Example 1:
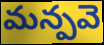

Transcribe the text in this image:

మన్పవె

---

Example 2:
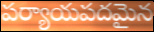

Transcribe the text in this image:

పర్యాయపదమైన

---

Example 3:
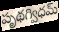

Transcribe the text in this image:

పృథగ్విధమ్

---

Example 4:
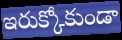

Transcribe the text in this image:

ఇరుక్కోకుండా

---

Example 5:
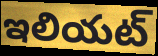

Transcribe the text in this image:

ఇలియట్